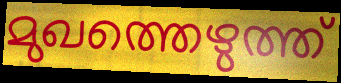
മുഖത്തെഴുത്ത്